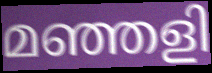
മഞ്ഞളി